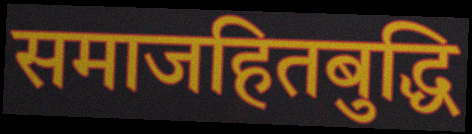
समाजहितबुद्धि